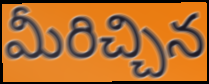
మీరిచ్చిన